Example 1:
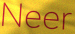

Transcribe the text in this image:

Neer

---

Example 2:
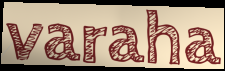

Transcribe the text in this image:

varaha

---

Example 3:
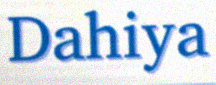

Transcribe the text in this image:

Dahiya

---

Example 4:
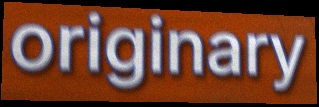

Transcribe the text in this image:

originary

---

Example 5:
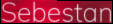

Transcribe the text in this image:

Sebestan